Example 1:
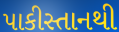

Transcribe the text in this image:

પાકીસ્તાનથી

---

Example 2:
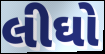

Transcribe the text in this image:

લીઘો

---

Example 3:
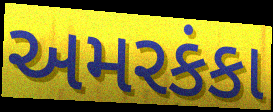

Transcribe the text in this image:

અમરકંકા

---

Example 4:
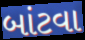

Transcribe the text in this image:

બાંટવા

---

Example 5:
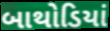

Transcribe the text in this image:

બાથોડિયાં